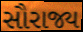
સૌરાજ્ય